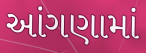
આંગણામાં